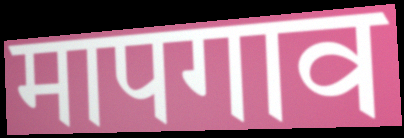
मापगाव